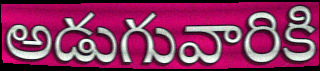
అడుగువారికి